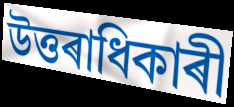
উত্তৰাধিকাৰী